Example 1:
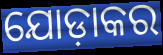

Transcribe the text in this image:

ଯୋଡ଼ାକର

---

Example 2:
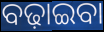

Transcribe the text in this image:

ବଢ଼ାଇବା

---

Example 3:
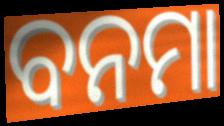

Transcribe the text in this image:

ବନମା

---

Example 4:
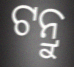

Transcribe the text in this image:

ଟନ୍ରୁ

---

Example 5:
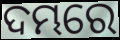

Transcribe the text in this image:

ଦମ୍ଭରେ